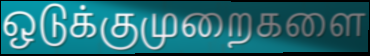
ஒடுக்குமுறைகளை